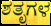
ಶತೃಗಳ